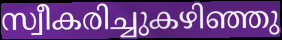
സ്വീകരിച്ചുകഴിഞ്ഞു